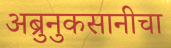
अब्रुनुकसानीचा